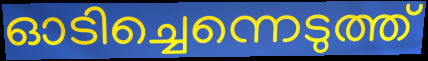
ഓടിച്ചെന്നെടുത്ത്